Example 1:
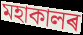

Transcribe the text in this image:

মহাকালৰ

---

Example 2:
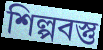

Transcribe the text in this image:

শিল্পবস্তু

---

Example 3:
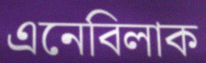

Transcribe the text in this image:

এনেবিলাক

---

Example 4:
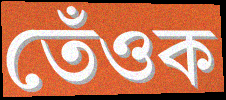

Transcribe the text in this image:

তেঁওক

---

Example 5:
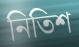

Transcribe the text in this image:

নিতিশ